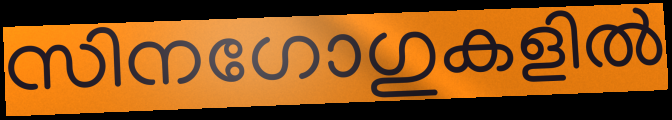
സിനഗോഗുകളിൽ